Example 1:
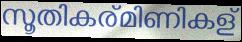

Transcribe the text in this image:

സൂതികര്മിണികള്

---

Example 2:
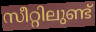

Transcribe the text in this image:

സീറ്റിലുണ്ട്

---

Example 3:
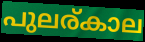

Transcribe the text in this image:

പുലര്കാല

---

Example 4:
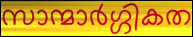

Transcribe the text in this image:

സാന്മാർഗ്ഗികത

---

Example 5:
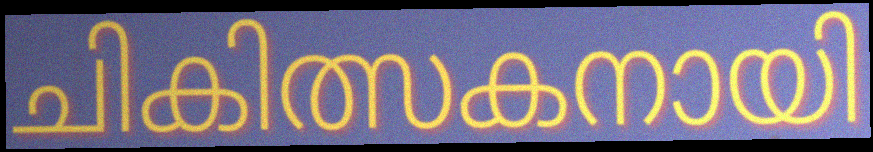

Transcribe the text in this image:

ചികിത്സകനായി